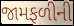
જામફળીની